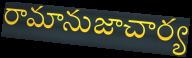
రామానుజాచార్య